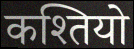
कश्तियो